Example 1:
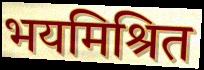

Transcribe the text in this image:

भयमिश्रित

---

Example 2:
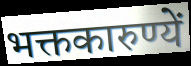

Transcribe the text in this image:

भक्तकारुण्यें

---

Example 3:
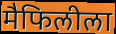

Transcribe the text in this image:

मैफिलीला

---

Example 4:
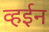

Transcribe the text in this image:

व्हईन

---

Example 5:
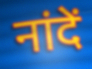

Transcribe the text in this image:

नांदें